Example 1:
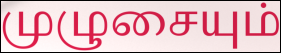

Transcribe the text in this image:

முழுசையும்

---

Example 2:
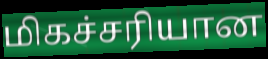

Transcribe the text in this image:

மிகச்சரியான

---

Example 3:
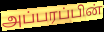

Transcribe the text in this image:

அப்பரப்பின்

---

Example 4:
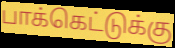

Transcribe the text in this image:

பாக்கெட்டுக்கு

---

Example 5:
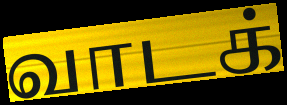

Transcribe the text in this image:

வாடக்